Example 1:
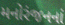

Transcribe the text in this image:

મનોરંજનનાં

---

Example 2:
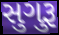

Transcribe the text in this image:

સુગુરૂ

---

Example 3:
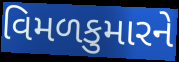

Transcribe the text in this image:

વિમળકુમારને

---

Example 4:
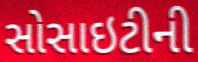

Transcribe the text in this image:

સોસાઇટીની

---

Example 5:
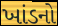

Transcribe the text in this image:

ખાંડનો